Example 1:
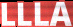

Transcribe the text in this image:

LLLA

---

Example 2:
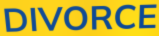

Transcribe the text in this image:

DIVORCE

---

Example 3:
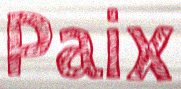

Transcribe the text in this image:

Paix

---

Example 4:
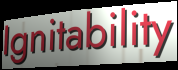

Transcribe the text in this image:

Ignitability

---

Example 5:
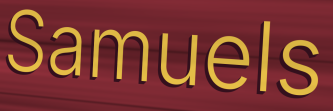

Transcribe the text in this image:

Samuels